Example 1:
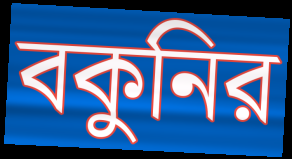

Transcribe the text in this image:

বকুনির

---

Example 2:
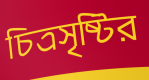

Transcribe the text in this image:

চিত্রসৃষ্টির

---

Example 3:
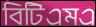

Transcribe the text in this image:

বিটিএমএ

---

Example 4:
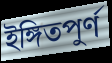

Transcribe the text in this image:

ইঙ্গিতপুর্ণ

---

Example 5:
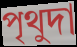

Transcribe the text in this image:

পৃথুদা